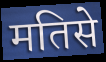
मतिसे